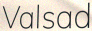
Valsad